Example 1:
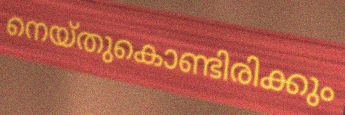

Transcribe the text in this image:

നെയ്തുകൊണ്ടിരിക്കും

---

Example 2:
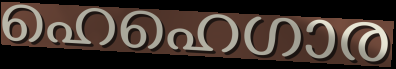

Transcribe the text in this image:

ഹെഹെഗാര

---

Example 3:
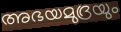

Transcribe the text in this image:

അഭയമുദ്രയും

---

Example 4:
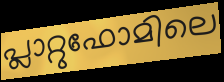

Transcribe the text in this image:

പ്ലാറ്റുഫോമിലെ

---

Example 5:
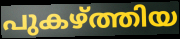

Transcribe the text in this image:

പുകഴ്ത്തിയ